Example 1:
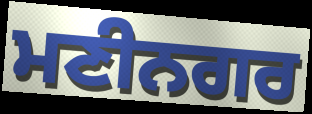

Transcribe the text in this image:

ਮਣੀਨਗਰ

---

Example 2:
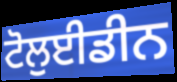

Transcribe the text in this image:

ਟੋਲੁਈਡੀਨ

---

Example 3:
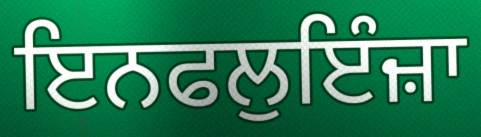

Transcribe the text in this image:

ਇਨਫਲੁਇੰਜ਼ਾ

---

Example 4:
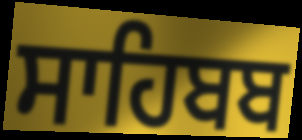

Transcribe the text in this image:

ਸਾਹਿਬਬ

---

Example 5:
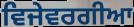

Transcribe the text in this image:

ਵਿਜੇਵਰਗੀਆ